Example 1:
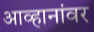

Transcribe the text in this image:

आव्हानांवर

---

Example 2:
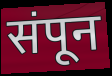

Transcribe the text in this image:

संपून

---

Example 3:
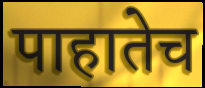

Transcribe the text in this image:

पाहातेच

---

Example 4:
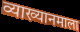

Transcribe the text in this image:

व्याख्यानमाला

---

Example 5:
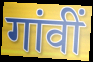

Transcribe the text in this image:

गांवीं